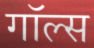
गॉल्स